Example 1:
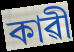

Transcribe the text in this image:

কাৱী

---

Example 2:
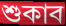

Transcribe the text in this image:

শুকাব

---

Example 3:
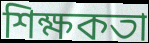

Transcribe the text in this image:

শিক্ষকতা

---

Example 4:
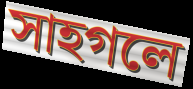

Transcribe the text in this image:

সাহগলে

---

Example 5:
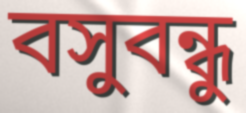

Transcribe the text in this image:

বসুবন্ধু